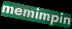
memimpin